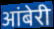
आंबेरी